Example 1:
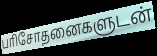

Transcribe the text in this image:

பரிசோதனைகளுடன்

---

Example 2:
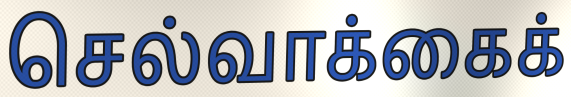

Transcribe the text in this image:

செல்வாக்கைக்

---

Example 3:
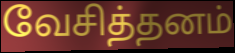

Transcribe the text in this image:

வேசித்தனம்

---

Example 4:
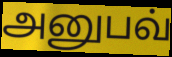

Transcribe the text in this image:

அனுபவ்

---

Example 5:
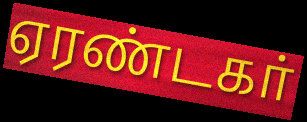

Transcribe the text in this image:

ஏரண்டகர்